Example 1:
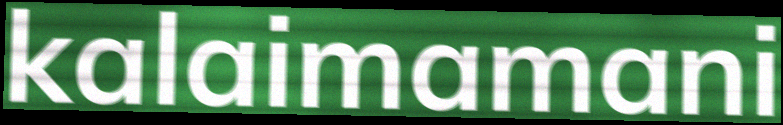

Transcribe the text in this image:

kalaimamani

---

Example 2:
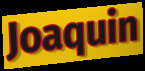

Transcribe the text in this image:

Joaquin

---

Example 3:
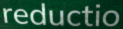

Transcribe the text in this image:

reductio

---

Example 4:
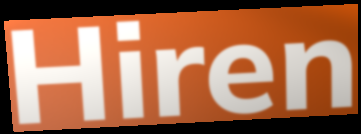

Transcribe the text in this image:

Hiren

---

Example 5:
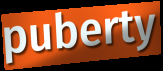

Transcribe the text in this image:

puberty